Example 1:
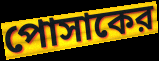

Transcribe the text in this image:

পোসাকের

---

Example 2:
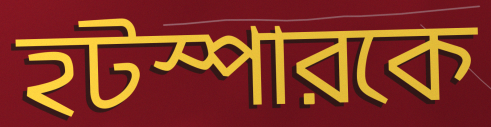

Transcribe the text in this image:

হটস্পারকে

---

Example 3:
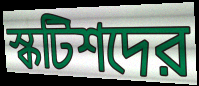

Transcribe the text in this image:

স্কটিশদের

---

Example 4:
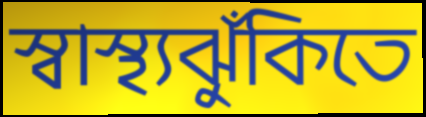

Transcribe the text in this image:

স্বাস্থ্যঝুঁকিতে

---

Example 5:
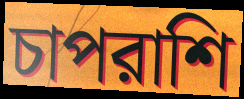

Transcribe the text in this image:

চাপরাশি